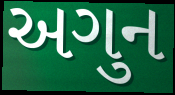
અગુન